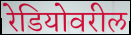
रेडियोवरील